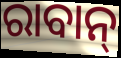
ରାବାନ୍